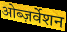
ओब्ज़र्वेशन